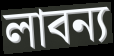
লাবন্য